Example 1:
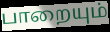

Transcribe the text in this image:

பாறையும்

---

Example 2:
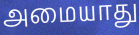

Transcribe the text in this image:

அமையாது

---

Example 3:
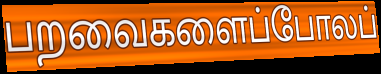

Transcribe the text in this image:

பறவைகளைப்போலப்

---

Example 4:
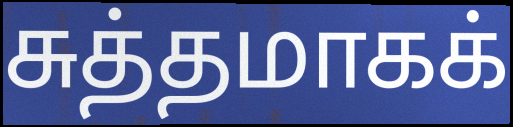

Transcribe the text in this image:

சுத்தமாகக்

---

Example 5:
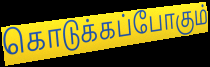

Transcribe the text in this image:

கொடுக்கப்போகும்